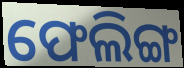
ଫେଲିଙ୍ଗ